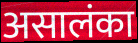
असालंका